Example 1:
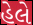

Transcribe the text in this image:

હેલે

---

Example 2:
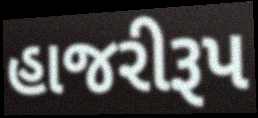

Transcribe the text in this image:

હાજરીરૂપ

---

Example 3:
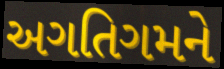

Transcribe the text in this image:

અગતિગમને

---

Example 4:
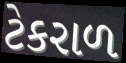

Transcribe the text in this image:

ટેકરાળ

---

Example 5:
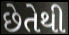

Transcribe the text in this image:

છેતેથી